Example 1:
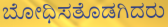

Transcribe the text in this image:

ಬೋಧಿಸತೊಡಗಿದರು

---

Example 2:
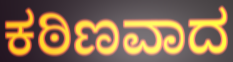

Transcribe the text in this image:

ಕಠಿಣವಾದ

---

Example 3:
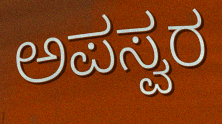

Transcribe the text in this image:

ಅಪಸ್ವರ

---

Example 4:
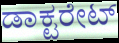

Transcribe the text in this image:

ಡಾಕ್ಟರೇಟ್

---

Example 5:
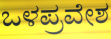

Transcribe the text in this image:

ಒಳಪ್ರವೇಶ